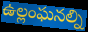
ఉల్లంఘనల్ని